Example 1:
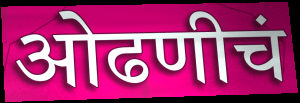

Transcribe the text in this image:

ओढणीचं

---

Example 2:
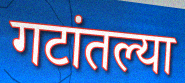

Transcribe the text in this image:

गटांतल्या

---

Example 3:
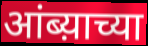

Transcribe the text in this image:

आंब्य़ाच्या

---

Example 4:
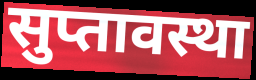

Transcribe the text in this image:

सुप्तावस्था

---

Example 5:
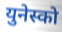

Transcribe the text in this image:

युनेस्को